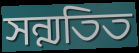
সন্মতিত